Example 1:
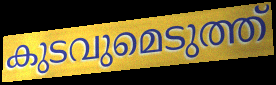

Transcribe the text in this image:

കുടവുമെടുത്ത്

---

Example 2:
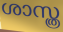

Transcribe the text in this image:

ശാസ്ത്ര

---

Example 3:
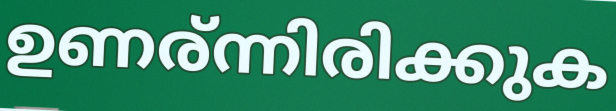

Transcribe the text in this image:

ഉണര്ന്നിരിക്കുക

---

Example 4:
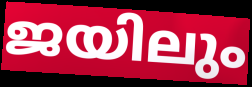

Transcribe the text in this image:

ജയിലും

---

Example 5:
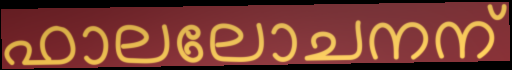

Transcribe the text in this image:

ഫാലലോചനന്